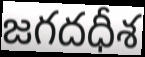
జగదధీశ